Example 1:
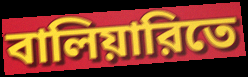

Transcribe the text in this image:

বালিয়ারিতে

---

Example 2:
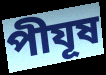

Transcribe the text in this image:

পীযূষ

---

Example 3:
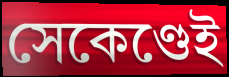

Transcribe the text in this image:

সেকেণ্ডেই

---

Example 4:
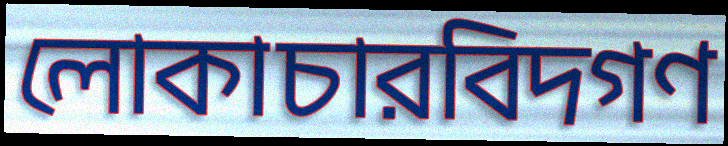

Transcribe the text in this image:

লোকাচারবিদগণ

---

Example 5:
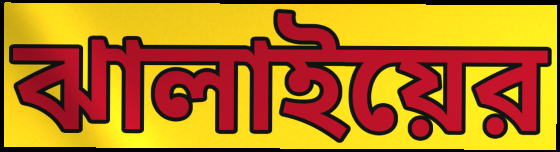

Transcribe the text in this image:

ঝালাইয়ের